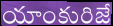
యాంకురిజే